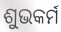
ଶୁଭକର୍ମ